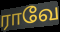
ராவே